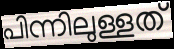
പിന്നിലുള്ളത്